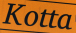
Kotta